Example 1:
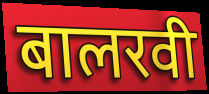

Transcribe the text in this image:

बालरवी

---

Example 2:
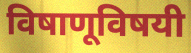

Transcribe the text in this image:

विषाणूविषयी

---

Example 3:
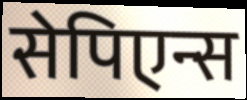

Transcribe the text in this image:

सेपिएन्स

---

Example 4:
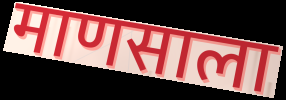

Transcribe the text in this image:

माणसाला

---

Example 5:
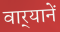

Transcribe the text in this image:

वार्यानें